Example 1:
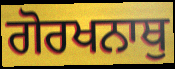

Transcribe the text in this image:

ਗੋਰਖਨਾਥੁ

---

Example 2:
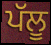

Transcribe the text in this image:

ਪੱਲੂ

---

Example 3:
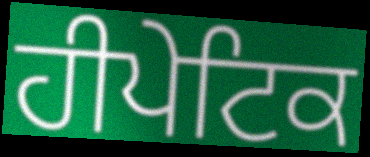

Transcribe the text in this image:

ਹੀਪੇਟਿਕ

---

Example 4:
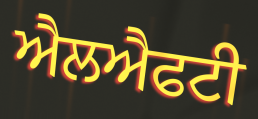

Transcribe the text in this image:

ਐਲਐਫਟੀ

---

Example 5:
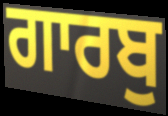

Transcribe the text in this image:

ਗਾਰਬੁ